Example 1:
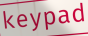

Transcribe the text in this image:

keypad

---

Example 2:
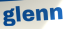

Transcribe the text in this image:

glenn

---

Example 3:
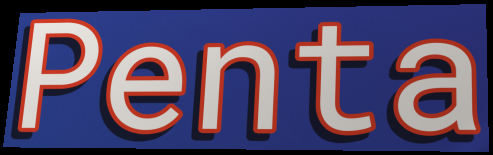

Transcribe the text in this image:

Penta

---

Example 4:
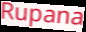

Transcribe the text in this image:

Rupana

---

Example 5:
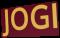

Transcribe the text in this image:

JOGI